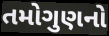
તમોગુણનો